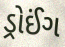
ડ્રોઈંગ